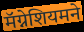
मॅग्नेशियमने